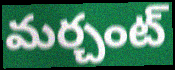
మర్చంట్